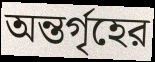
অন্তর্গৃহের